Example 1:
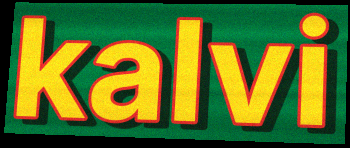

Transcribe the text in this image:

kalvi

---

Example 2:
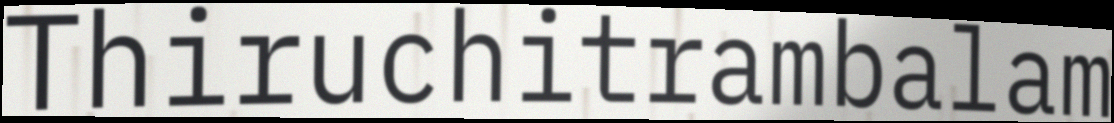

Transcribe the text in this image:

Thiruchitrambalam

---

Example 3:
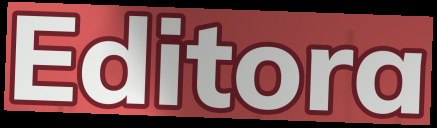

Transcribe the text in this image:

Editora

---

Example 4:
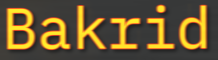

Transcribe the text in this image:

Bakrid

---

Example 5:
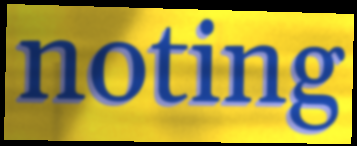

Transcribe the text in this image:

noting